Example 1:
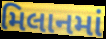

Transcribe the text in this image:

મિલાનમાં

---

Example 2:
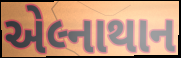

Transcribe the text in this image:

એલ્નાથાન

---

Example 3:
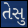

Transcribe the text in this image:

તેસુ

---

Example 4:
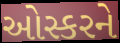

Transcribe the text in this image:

ઓસ્કરને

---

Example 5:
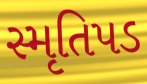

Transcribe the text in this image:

સ્મૃતિપડ